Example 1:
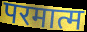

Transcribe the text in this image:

परमात्म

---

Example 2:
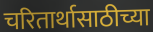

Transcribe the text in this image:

चरितार्थासाठीच्या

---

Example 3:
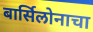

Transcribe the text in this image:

बार्सिलोनाचा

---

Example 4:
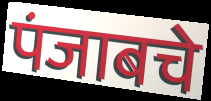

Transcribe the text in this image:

पंजाबचे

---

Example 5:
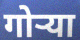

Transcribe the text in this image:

गोऱ्या